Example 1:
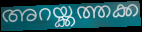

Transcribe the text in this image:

അറയ്ക്കത്തക്ക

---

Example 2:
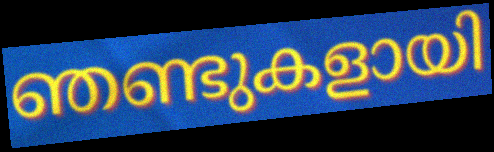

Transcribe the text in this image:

ഞണ്ടുകളായി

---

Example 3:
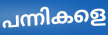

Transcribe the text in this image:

പന്നികളെ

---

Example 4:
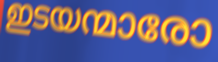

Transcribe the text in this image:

ഇടയന്മാരോ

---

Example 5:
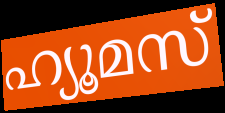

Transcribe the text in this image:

ഹ്യൂമസ്